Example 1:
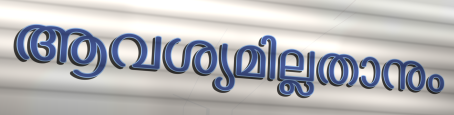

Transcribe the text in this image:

ആവശ്യമില്ലതാനും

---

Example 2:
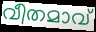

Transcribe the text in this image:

വീതമാവ്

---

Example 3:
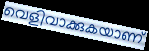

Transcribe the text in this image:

വെളിവാക്കുകയാണ്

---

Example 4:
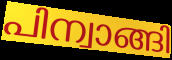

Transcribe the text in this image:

പിന്വാങ്ങി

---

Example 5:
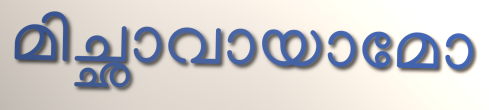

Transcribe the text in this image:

മിച്ഛാവായാമോ